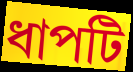
ধাপটি